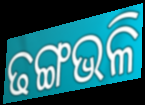
ଢଙ୍ଗଭଳି